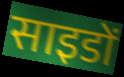
साइडों